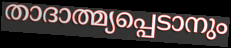
താദാത്മ്യപ്പെടാനും